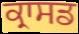
ਕ੍ਰਾਸਡ